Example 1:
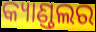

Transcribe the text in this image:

କ୍ୟାଣ୍ଡଲର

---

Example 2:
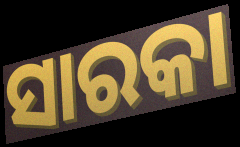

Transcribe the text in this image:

ସାରକା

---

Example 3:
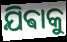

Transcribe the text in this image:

ଯିଵାକୁ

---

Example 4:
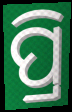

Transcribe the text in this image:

ପ୍ରି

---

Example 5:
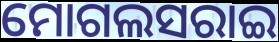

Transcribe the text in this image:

ମୋଗଲସରାଇ